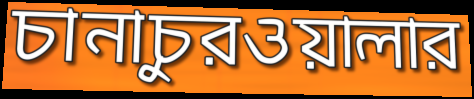
চানাচুরওয়ালার